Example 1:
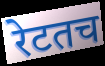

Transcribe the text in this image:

रेटतच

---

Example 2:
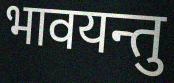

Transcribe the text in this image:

भावयन्तु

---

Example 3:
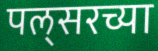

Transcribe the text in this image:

पल्सरच्या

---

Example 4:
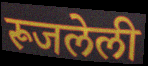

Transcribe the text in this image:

रूजलेली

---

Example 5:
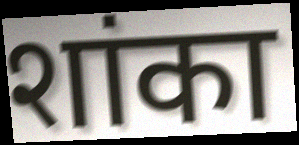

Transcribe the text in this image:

शांका